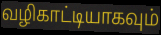
வழிகாட்டியாகவும்